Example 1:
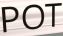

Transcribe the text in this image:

POT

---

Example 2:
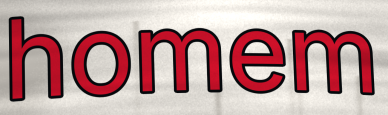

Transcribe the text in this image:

homem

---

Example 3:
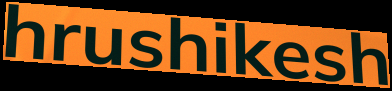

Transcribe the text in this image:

hrushikesh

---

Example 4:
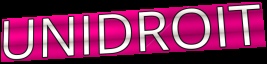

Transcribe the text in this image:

UNIDROIT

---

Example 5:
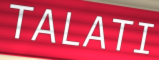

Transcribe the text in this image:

TALATI